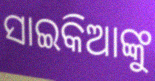
ସାଇକିଆଙ୍କୁ